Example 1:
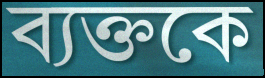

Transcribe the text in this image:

ব্যক্তকে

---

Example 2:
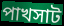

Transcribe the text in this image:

পাখসাট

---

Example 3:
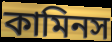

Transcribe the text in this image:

কামিনস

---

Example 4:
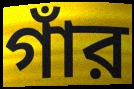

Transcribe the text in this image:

গাঁর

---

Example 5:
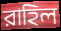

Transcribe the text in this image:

রাহিল